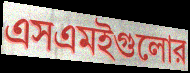
এসএমইগুলোর